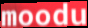
moodu